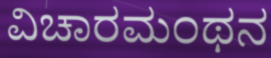
ವಿಚಾರಮಂಥನ